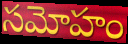
సమోహం